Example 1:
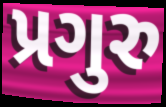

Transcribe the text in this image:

પ્રગુરુ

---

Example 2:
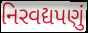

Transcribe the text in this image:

નિરવદ્યપણું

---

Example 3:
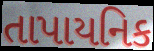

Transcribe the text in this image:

તાપાયનિક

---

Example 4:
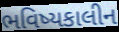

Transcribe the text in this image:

ભવિષ્યકાલીન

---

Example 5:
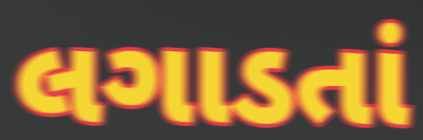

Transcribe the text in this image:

લગાડતાં